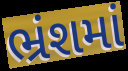
ભ્રંશમાં